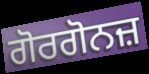
ਗੋਰਗੋਨਜ਼